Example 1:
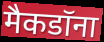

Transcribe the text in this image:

मैकडॉना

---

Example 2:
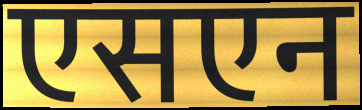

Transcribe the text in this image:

एसएन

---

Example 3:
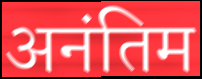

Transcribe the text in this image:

अनंतिम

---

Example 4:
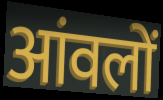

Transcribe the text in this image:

आंवलों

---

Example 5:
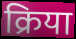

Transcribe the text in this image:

क्रिया